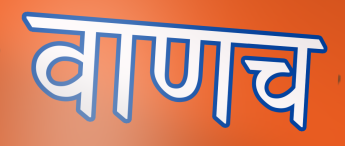
वाणच